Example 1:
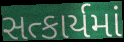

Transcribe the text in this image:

સત્કાર્યમાં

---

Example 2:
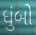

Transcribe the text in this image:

ધુંબો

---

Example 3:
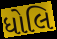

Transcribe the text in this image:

ધોલિ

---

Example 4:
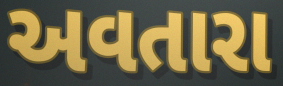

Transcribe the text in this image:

અવતારા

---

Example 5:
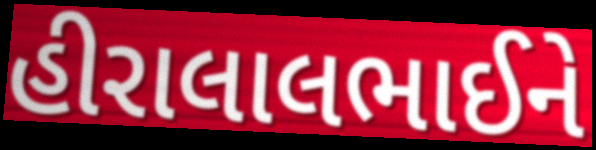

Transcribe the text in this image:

હીરાલાલભાઈને